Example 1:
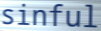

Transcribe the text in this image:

sinful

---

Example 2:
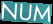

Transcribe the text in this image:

NUM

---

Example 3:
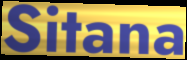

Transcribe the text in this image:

Sitana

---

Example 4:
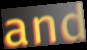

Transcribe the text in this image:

and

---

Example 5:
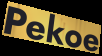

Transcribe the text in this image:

Pekoe